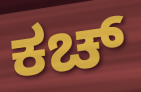
ಕಚ್